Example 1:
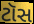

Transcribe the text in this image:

ટૉસ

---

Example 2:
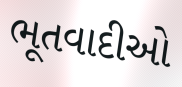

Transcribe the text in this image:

ભૂતવાદીઓ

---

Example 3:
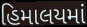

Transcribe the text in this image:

હિમાલયમાં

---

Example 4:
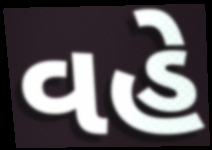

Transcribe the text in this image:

વહે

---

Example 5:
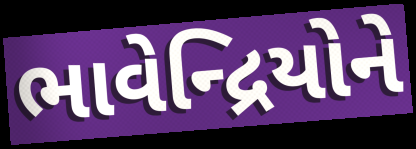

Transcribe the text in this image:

ભાવેન્દ્રિયોને